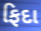
ફિદા